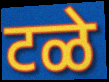
टळे